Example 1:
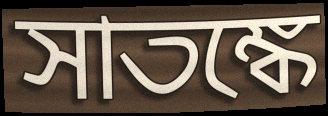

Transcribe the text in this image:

সাতঙ্কে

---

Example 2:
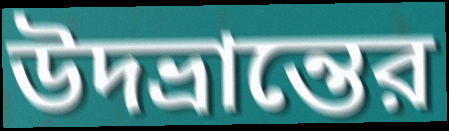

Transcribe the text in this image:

উদভ্রান্তের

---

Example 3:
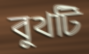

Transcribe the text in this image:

বুথটি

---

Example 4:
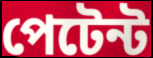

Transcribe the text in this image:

পেটেন্ট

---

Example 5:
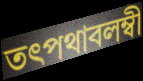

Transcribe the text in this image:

তৎপথাবলম্বী